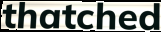
thatched